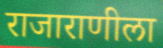
राजाराणीला